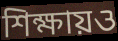
শিক্ষায়ও